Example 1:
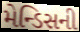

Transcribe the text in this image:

મેન્ડિસની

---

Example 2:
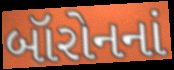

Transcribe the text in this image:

બૉરોનનાં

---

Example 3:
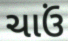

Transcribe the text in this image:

ચાઉં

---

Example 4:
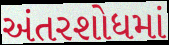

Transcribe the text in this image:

અંતરશોધમાં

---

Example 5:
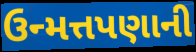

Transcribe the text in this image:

ઉન્મત્તપણાની